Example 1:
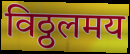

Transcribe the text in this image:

विठ्ठलमय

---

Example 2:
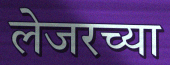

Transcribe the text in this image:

लेजरच्या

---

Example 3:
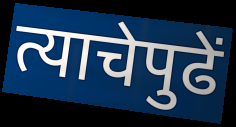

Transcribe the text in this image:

त्याचेपुढें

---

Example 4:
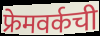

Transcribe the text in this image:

फ्रेमवर्कची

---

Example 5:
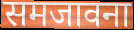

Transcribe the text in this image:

समजावना